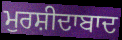
ਮੁਰਸ਼ੀਦਾਬਾਦ